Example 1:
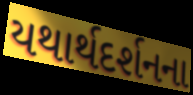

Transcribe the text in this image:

યથાર્થદર્શનના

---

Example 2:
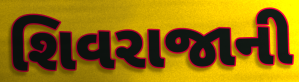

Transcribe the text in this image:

શિવરાજાની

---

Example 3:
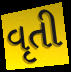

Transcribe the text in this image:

વૃતી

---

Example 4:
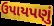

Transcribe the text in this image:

ઉપાયપણું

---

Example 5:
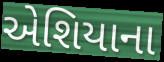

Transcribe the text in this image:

એશિયાના